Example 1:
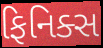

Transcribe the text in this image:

ફિનિક્સ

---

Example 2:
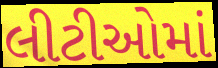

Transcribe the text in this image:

લીટીઓમાં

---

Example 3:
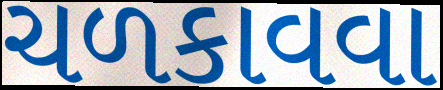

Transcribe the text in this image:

ચળકાવવા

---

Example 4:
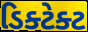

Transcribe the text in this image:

ડિક્ટેક્ટ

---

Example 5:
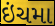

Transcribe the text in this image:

ઇંચમા